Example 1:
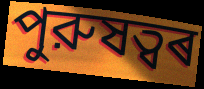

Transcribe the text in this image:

পুৰুষত্বৰ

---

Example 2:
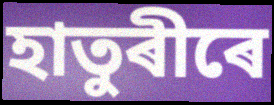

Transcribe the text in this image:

হাতুৰীৰে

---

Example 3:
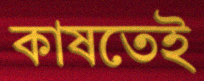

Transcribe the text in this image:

কাষতেই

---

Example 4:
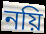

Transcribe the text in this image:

নয়ি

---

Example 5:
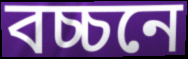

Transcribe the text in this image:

বচ্চনে